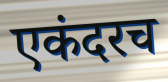
एकंदरच